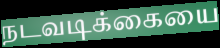
நடவடிக்கையை